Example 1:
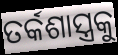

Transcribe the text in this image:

ତର୍କଶାସ୍ତ୍ରକୁ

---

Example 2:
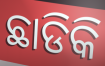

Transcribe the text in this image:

ଛାଡିକି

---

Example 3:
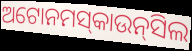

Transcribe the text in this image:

ଅଟୋନମସ୍‌କାଉନ୍‌ସିଲ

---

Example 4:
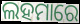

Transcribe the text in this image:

ଲହମାରେ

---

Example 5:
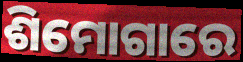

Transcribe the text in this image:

ଶିମୋଗାରେ